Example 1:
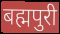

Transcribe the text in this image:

बह्मपुरी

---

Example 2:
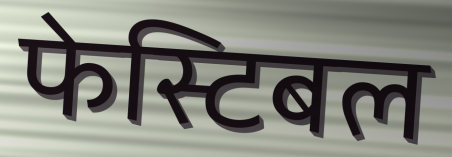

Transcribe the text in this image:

फेस्टिबल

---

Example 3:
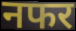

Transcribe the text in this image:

नफर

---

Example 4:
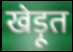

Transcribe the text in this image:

खेड़ूत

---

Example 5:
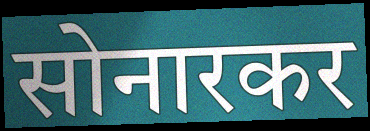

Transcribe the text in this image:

सोनारकर